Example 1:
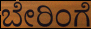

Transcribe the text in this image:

ಬೇರಿಂಗೆ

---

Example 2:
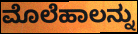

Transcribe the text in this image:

ಮೊಲೆಹಾಲನ್ನು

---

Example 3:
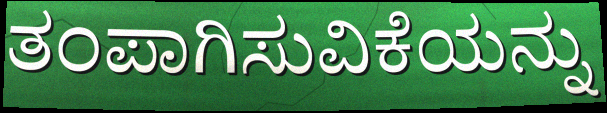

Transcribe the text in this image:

ತಂಪಾಗಿಸುವಿಕೆಯನ್ನು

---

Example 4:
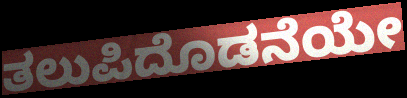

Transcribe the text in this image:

ತಲುಪಿದೊಡನೆಯೇ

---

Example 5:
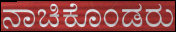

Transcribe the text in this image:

ನಾಚಿಕೊಂಡರು